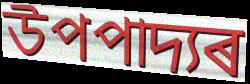
উপপাদ্যৰ